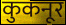
कुकनूर